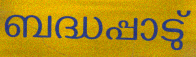
ബദ്ധപ്പാടു്